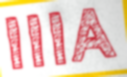
IIIA